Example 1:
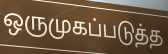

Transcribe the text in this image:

ஒருமுகப்படுத்த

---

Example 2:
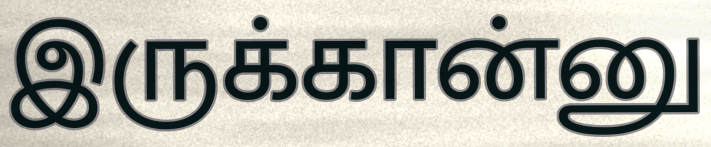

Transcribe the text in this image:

இருக்கான்னு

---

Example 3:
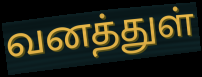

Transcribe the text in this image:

வனத்துள்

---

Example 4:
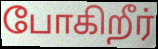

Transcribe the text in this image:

போகிறீர்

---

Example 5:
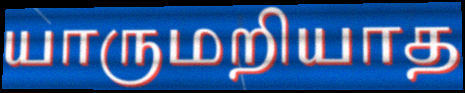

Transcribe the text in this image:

யாருமறியாத